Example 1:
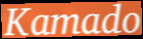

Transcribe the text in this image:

Kamado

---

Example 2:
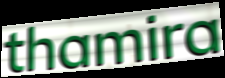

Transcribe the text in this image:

thamira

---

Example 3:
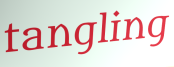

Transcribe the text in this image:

tangling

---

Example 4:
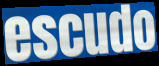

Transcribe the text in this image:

escudo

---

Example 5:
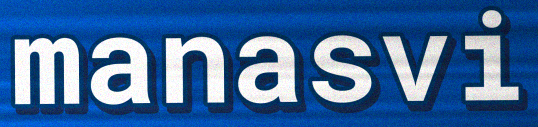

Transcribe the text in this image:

manasvi